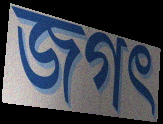
জগৎ